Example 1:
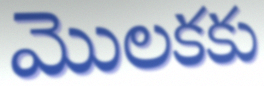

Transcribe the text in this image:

మొలకకు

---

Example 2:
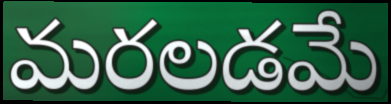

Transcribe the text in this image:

మరలడమే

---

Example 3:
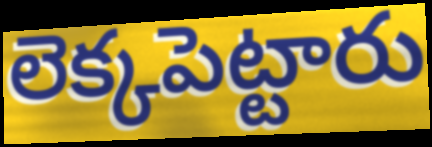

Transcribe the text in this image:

లెక్కపెట్టారు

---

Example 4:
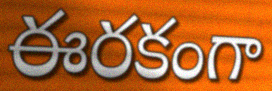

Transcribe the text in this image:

ఈరకంగా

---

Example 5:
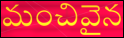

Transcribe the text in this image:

మంచివైన